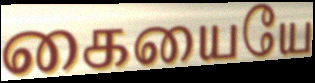
கையையே